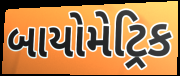
બાયોમેટ્રિક